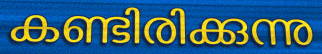
കണ്ടിരിക്കുന്നു